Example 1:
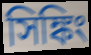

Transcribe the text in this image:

সিঙ্কিং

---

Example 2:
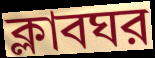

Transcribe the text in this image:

ক্লাবঘর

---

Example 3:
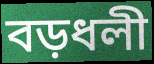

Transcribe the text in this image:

বড়ধলী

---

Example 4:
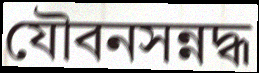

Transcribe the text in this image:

যৌবনসন্নদ্ধ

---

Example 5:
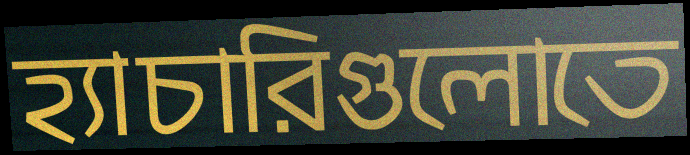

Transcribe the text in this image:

হ্যাচারিগুলোতে